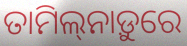
ତାମିଲ୍‌ନାଡ଼ୁରେ